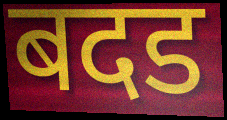
बदड